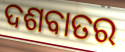
ଦଶବାତର